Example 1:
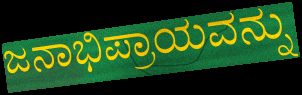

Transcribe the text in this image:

ಜನಾಭಿಪ್ರಾಯವನ್ನು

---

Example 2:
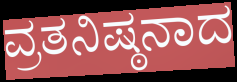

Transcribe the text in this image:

ವ್ರತನಿಷ್ಠನಾದ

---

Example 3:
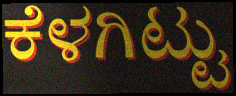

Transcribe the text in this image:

ಕೆಳಗಿಟ್ಟು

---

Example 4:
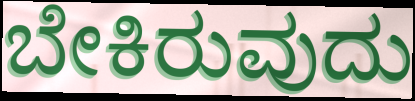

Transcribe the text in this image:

ಬೇಕಿರುವುದು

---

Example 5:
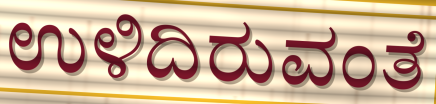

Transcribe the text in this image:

ಉಳಿದಿರುವಂತೆ